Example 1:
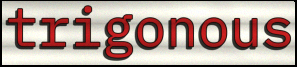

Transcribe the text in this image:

trigonous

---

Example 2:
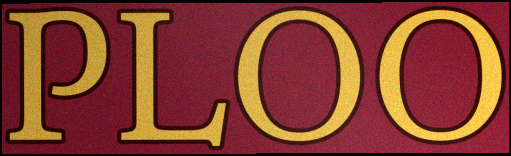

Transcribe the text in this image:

PLOO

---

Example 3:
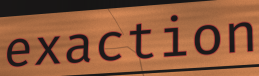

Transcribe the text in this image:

exaction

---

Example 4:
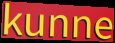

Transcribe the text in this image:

kunne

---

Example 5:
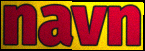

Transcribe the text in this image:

navn